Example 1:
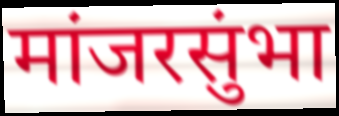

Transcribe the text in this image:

मांजरसुंभा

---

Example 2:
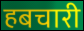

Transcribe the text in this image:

हबचारी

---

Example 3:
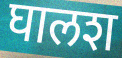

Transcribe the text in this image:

घालश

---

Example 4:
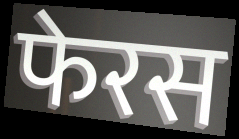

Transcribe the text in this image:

फेरस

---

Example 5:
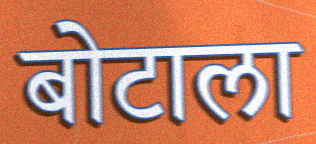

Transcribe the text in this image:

बोटाला